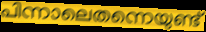
പിന്നാലെതന്നെയുണ്ട്